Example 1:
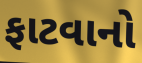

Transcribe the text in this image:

ફાટવાનો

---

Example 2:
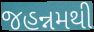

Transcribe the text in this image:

જહન્નમથી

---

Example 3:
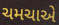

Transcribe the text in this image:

ચમચાએ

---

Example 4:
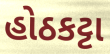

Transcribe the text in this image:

હોઠકટ્ટા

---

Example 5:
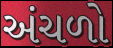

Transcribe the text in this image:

અંચળો